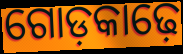
ଗୋଡ଼କାଢ଼େ